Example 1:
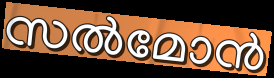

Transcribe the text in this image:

സൽമോൻ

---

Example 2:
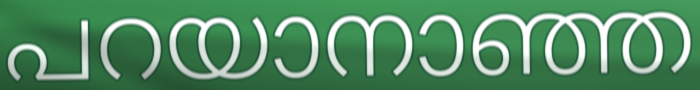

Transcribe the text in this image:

പറയാനാഞ്ഞ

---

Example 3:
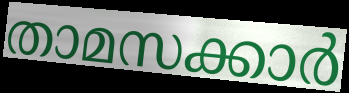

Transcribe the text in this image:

താമസക്കാർ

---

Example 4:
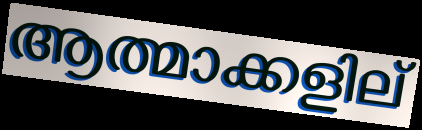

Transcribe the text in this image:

ആത്മാക്കളില്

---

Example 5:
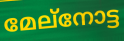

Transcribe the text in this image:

മേല്നോട്ട